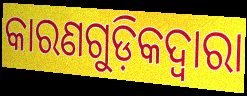
କାରଣଗୁଡ଼ିକଦ୍ବାରା